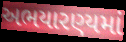
અભયારણ્યમાં